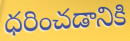
ధరించడానికి